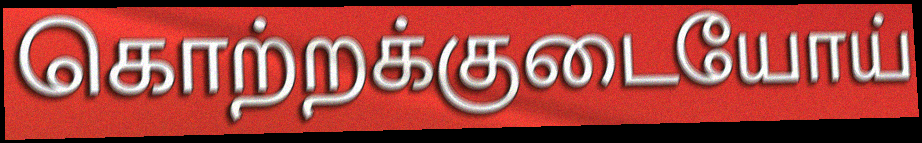
கொற்றக்குடையோய்